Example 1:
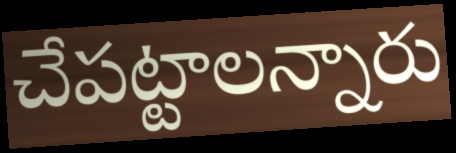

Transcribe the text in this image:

చేపట్టాలన్నారు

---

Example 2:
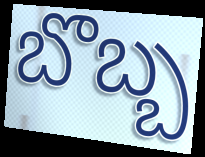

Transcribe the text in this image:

బొబ్బ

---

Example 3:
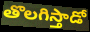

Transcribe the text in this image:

తొలగిస్తాడో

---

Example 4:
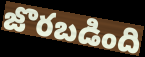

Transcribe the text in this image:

జొరబడింది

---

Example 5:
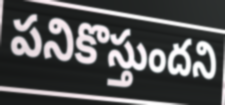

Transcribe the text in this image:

పనికొస్తుందని